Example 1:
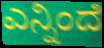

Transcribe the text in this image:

ಎನ್ನಿಂದೆ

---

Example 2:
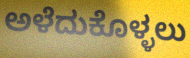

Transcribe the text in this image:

ಅಳೆದುಕೊಳ್ಳಲು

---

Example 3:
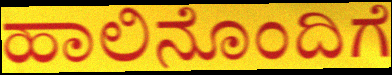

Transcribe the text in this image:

ಹಾಲಿನೊಂದಿಗೆ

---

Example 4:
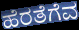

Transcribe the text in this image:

ಹೆರತೆಗೆವ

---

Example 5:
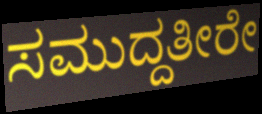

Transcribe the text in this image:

ಸಮುದ್ದತೀರೇ